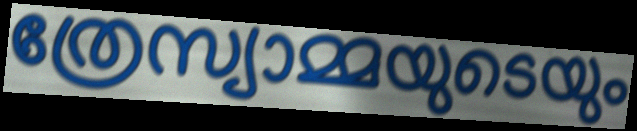
ത്രേസ്യാമ്മയുടെയും